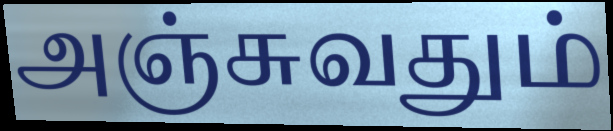
அஞ்சுவதும்